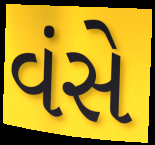
વંસે